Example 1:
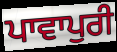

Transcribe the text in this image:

ਪਾਵਾਪੁਰੀ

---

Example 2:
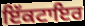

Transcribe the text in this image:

ਇੱਕਟਾਇਰ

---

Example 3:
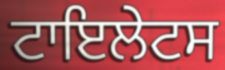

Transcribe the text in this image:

ਟਾਇਲੇਟਸ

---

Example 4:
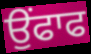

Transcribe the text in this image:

ਉੰਫਾਫ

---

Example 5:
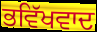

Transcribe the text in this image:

ਭਵਿੱਖਵਾਦ